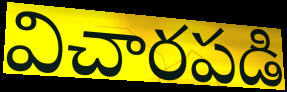
విచారపడి